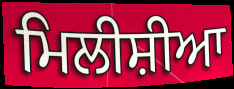
ਮਿਲੀਸ਼ੀਆ